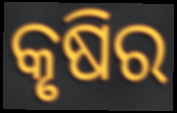
କୃଷିର